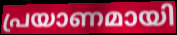
പ്രയാണമായി